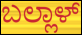
ಬಲ್ಲಾಳ್